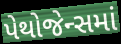
પેથોજેન્સમાં